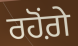
ਰਹੋਂਗ਼ੇ